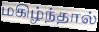
மகிழ்ந்தால்